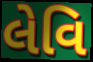
લેવિ